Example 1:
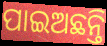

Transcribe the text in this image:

ପାଇଅଛନ୍ତି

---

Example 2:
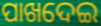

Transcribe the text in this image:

ପାଖଦେଇ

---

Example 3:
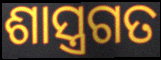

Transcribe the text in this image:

ଶାସ୍ତ୍ରଗତ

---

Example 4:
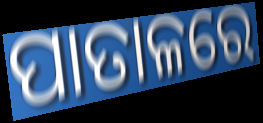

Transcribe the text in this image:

ପାତାଳରେ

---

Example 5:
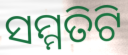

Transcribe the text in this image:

ସମ୍ମତିଟି